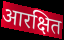
आरक्षित